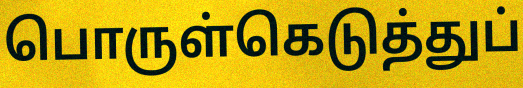
பொருள்கெடுத்துப்